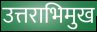
उत्तराभिमुख